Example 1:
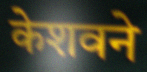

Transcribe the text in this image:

केशवने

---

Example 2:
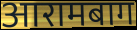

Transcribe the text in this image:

आरामबाग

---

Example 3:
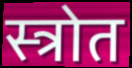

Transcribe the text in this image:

स्त्रोत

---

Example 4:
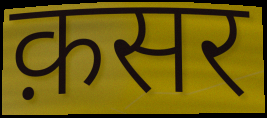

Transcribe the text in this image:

क़सर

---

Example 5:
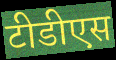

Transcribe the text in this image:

टीडीएस